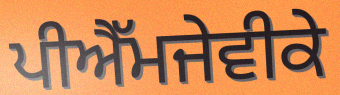
ਪੀਐੱਮਜੇਵੀਕੇ